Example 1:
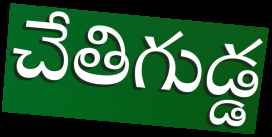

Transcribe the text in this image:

చేతిగుడ్డ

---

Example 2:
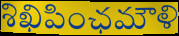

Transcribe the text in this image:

శిఖిపింఛమౌళి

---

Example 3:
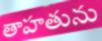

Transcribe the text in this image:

తాహతును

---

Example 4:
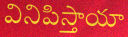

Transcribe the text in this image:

వినిపిస్తాయా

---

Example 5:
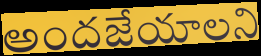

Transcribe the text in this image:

అందజేయాలని